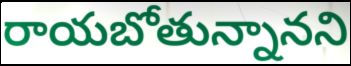
రాయబోతున్నానని